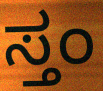
ಸ್ತಂ